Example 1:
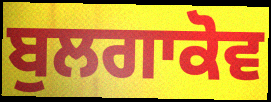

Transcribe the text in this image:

ਬੁਲਗਾਕੋਵ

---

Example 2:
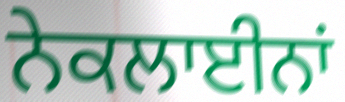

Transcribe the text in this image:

ਨੇਕਲਾਈਨਾਂ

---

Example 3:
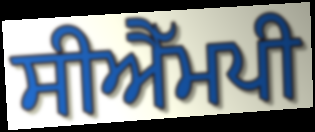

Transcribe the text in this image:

ਸੀਐੱਮਪੀ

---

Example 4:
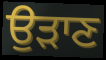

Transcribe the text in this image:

ਉਡ਼ਾਣ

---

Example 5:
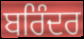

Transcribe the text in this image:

ਬਰਿੰਦਰ